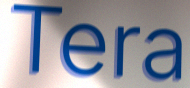
Tera